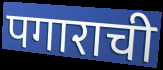
पगाराची